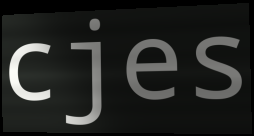
cjes